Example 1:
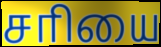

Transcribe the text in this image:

சரியை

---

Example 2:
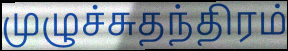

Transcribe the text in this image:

முழுச்சுதந்திரம்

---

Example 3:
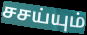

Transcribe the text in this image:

சசய்யும்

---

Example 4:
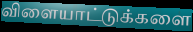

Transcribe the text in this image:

விளையாட்டுக்களை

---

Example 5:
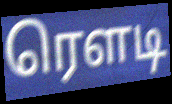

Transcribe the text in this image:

ரௌடி